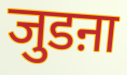
जुडऩा